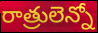
రాత్రులెన్నో